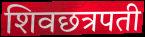
शिवछत्रपती